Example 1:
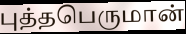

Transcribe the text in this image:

புத்தபெருமான்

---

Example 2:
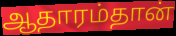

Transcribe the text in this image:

ஆதாரம்தான்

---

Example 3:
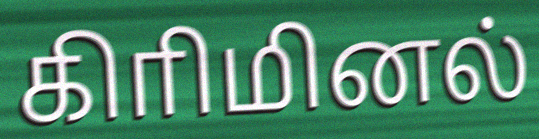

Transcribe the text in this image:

கிரிமினல்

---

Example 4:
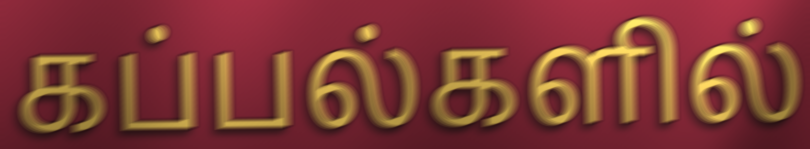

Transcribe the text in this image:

கப்பல்களில்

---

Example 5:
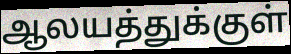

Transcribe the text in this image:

ஆலயத்துக்குள்